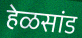
हेळसांड